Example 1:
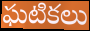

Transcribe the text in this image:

ఘటికలు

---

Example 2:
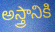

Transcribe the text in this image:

అస్త్రానికి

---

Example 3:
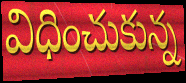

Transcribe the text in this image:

విధించుకున్న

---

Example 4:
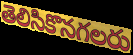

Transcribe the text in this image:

తెలిసికొనగలరు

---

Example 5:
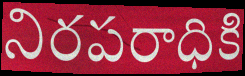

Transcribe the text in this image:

నిరపరాధికి